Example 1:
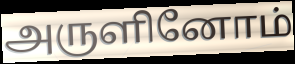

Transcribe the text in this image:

அருளினோம்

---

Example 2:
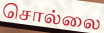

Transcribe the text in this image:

சொல்லை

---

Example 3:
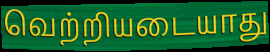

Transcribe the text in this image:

வெற்றியடையாது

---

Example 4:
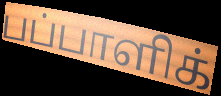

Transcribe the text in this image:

பப்பாளிக்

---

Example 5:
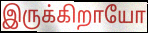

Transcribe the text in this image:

இருக்கிறாயோ